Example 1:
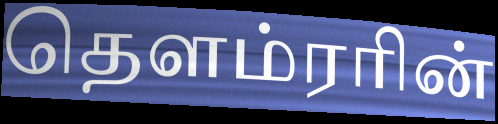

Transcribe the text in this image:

தௌம்ரரின்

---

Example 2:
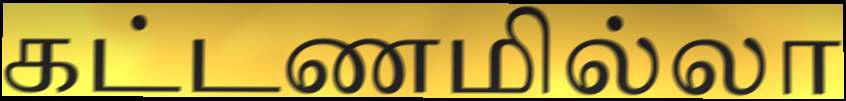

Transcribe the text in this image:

கட்டணமில்லா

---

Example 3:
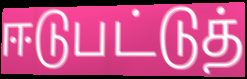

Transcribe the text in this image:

ஈடுபட்டுத்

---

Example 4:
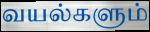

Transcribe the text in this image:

வயல்களும்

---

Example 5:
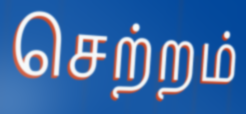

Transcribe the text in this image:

செற்றம்